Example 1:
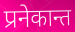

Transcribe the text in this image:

प्रनेकान्त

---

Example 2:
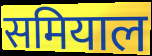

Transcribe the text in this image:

समियाल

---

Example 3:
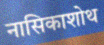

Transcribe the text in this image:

नासिकाशोथ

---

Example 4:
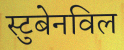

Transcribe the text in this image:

स्टुबेनविल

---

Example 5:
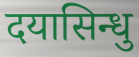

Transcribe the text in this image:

दयासिन्धु